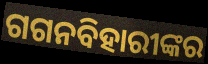
ଗଗନବିହାରୀଙ୍କର